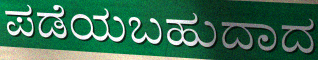
ಪಡೆಯಬಹುದಾದ